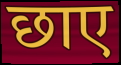
छाए